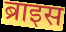
ब्राइस